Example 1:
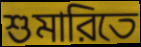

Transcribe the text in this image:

শুমারিতে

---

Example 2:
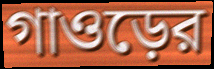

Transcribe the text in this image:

গাওড়ের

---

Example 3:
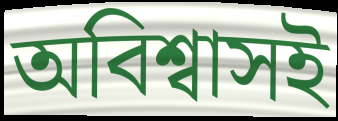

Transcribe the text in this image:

অবিশ্বাসই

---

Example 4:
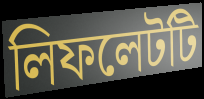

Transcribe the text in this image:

লিফলেটটি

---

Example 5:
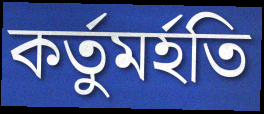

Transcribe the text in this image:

কর্তুমর্হতি